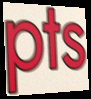
pts